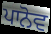
ਪਾਨੋਵ